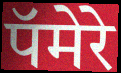
पॅमेरे